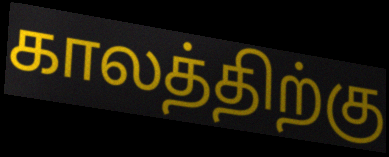
காலத்திற்கு